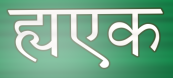
ह्यएक